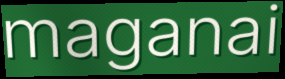
maganai